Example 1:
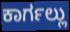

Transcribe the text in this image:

ಕಾರ್ಗಲ್ಲು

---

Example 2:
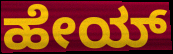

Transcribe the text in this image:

ಹೇಯ್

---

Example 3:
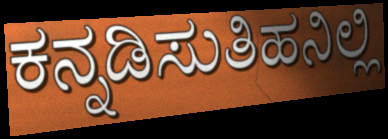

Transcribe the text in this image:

ಕನ್ನಡಿಸುತಿಹನಿಲ್ಲಿ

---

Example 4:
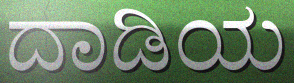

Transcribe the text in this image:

ದಾಡಿಯ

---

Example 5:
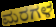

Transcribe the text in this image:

ಮರಗಳ